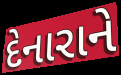
દેનારાને